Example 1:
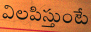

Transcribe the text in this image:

విలపిస్తుంటే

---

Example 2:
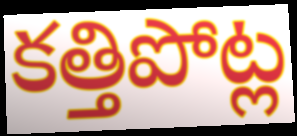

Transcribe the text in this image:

కత్తిపోట్ల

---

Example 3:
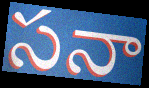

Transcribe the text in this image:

సనా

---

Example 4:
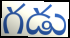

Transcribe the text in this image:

గడు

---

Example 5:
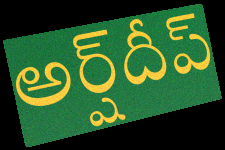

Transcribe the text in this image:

అర్ష్‌దీప్